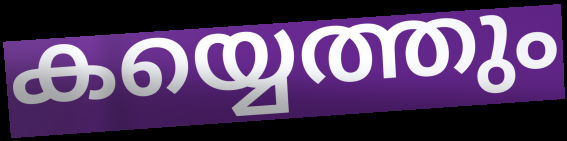
കയ്യെത്തും